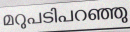
മറുപടിപറഞ്ഞു